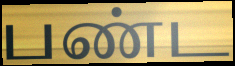
பண்ட